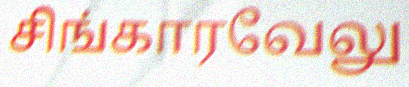
சிங்காரவேலு